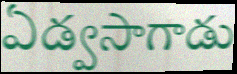
ఏడ్వసాగాడు